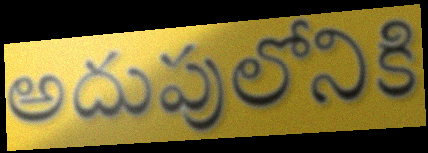
అదుపులోనికి